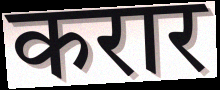
करार